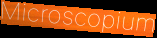
Microscopium